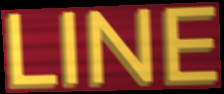
LINE